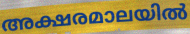
അക്ഷരമാലയിൽ